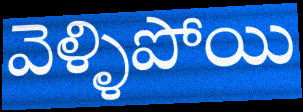
వెళ్ళిపోయి